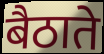
बैठाते